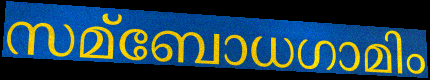
സമ്ബോധഗാമിം